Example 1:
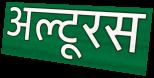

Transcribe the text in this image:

अल्टूरस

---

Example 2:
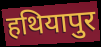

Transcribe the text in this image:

हथियापुर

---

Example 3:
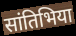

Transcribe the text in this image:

सांतिभिया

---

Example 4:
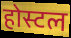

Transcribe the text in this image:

होस्टल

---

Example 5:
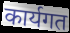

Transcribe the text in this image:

कार्यगत